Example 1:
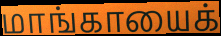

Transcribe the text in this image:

மாங்காயைக்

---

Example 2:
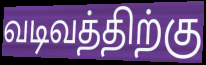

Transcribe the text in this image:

வடிவத்திற்கு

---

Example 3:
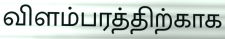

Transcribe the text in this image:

விளம்பரத்திற்காக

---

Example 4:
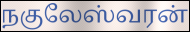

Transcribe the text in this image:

நகுலேஸ்வரன்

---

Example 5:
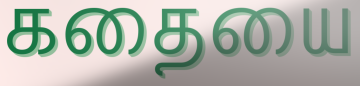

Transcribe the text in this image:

கதையை